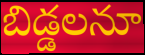
బిడ్డలనూ